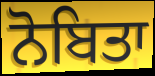
ਨੋਬਿਤਾ